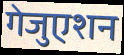
गेजुएशन